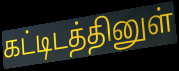
கட்டிடத்தினுள்